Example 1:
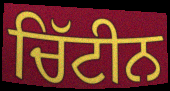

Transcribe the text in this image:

ਚਿੱਟੀਨ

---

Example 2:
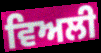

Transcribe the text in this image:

ਵਿਅਲੀ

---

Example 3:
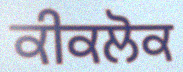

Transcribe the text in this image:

ਕੀਕਲੋਕ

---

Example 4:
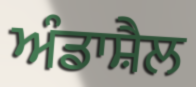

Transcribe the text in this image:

ਅੰਡਾਸ਼ੈਲ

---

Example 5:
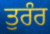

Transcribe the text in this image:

ਤੁਰੰਰ